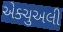
એક્ચુઅલી